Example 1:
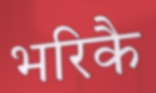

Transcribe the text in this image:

भरिकै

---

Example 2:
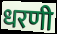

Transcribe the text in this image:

धरणी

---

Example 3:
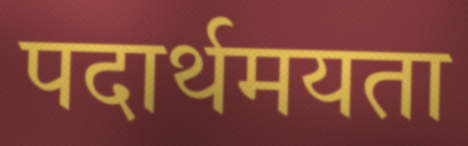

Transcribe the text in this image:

पदार्थमयता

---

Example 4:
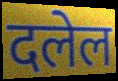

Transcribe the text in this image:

दलेल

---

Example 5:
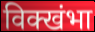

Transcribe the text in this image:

विक्खंभा